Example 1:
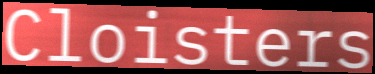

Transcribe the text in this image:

Cloisters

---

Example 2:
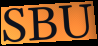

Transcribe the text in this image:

SBU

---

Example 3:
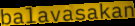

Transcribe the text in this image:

balavasakan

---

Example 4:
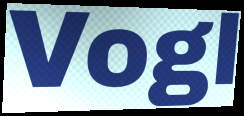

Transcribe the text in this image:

Vogl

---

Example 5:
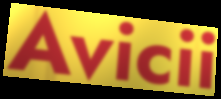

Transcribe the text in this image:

Avicii